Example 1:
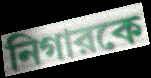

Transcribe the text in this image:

নিগারকে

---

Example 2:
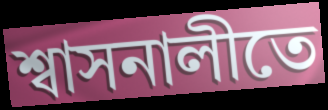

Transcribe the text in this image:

শ্বাসনালীতে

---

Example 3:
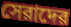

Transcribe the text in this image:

সেরাদের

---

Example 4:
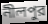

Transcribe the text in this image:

নীলপুর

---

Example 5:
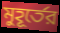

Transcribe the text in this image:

মুহূর্তের